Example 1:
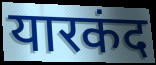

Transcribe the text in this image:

यारकंद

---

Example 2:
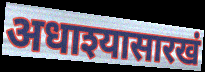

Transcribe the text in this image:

अधाश्यासारखं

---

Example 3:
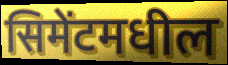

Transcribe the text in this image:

सिमेंटमधील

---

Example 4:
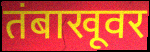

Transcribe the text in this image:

तंबाखूवर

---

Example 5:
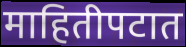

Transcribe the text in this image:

माहितीपटात